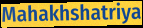
Mahakhshatriya